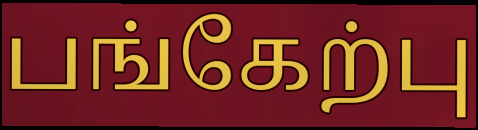
பங்கேற்பு